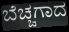
ಬೆಚ್ಚಗಾದ